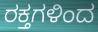
ರಕ್ತಗಳಿಂದ